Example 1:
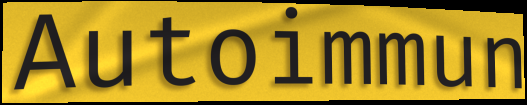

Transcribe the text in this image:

Autoimmun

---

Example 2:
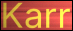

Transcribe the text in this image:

Karr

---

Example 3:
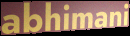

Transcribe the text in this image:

abhimani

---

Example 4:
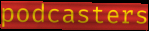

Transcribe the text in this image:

podcasters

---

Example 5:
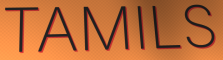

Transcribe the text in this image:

TAMILS